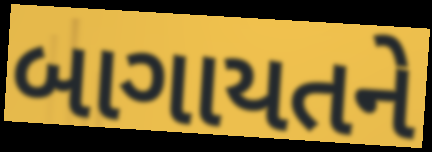
બાગાયતને